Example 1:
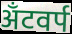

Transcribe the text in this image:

अँटवर्प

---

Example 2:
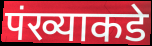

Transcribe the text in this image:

पंख्याकडे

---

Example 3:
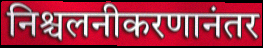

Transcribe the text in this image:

निश्चलनीकरणानंतर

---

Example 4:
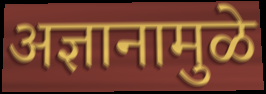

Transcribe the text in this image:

अज्ञानामुळे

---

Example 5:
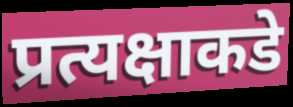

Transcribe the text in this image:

प्रत्यक्षाकडे